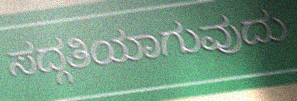
ಸದ್ಗತಿಯಾಗುವುದು